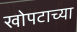
खोपटाच्या